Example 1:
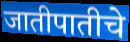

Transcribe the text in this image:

जातीपातीचे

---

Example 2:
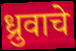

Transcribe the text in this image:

ध्रुवाचे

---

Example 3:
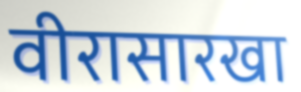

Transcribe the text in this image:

वीरासारखा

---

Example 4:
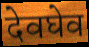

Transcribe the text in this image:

देवघेव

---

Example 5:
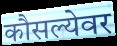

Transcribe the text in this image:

कौसल्येवर